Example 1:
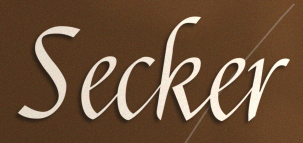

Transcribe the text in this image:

Secker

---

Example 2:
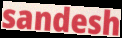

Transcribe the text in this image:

sandesh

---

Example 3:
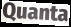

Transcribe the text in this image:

Quanta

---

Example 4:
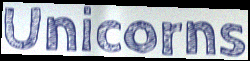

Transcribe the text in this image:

Unicorns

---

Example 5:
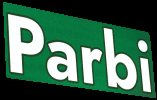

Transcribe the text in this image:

Parbi